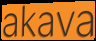
akava